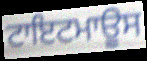
ਟਾਇਟਮਾਊਸ